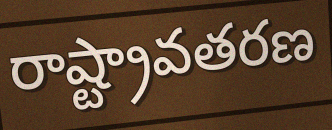
రాష్ట్రావతరణ